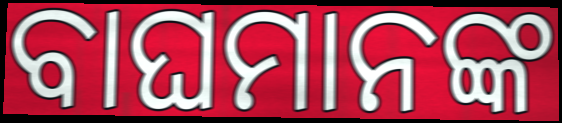
ବାଘମାନଙ୍କ